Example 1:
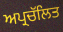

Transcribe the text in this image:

ਅਪ੍ਰਚੱਲਿਤ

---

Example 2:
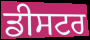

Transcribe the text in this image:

ਡੀਸਟਰ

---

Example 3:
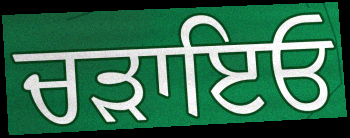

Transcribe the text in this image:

ਚੜਾਇਓ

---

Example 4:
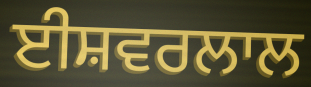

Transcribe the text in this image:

ਈਸ਼ਵਰਲਾਲ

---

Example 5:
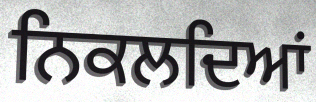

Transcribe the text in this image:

ਨਿਕਲਦਿਆਂ